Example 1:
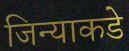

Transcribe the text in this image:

जिन्याकडे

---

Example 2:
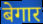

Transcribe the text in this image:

बेगार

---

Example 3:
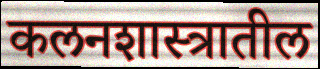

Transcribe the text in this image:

कलनशास्त्रातील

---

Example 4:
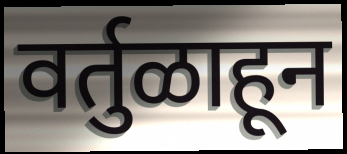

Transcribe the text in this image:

वर्तुळाहून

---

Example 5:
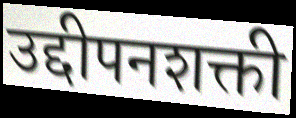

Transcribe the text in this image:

उद्दीपनशक्ती